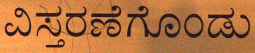
ವಿಸ್ತರಣೆಗೊಂಡು